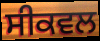
ਸੀਕਵਲ